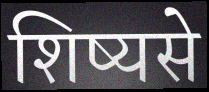
शिष्यसे